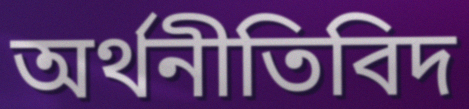
অৰ্থনীতিবিদ